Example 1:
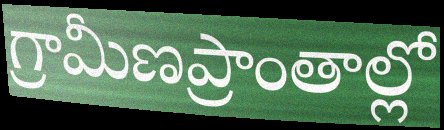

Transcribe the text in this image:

గ్రామీణప్రాంతాల్లో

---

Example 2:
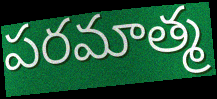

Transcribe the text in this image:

పరమాత్మ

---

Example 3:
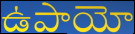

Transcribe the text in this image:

ఉపాయో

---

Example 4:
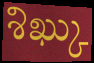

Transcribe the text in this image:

శిఖ్కు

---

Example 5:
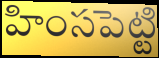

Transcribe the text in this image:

హింసపెట్టి